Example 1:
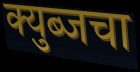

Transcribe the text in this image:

क्युब्जचा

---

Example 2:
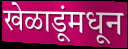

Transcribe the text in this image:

खेळाडूंमधून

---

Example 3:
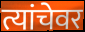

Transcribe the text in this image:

त्यांचेवर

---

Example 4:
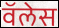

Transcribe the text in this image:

वॅलेस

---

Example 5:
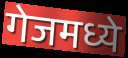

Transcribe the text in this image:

गेजमध्ये